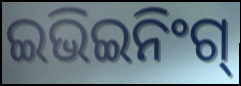
ଇଭିଇନିଂଗ୍